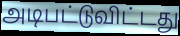
அடிபட்டுவிட்டது